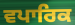
ਵਪਾਰਿਕ